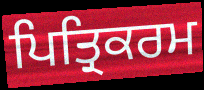
ਪਿਤ੍ਰਿਕਰਮ